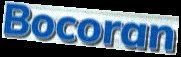
Bocoran